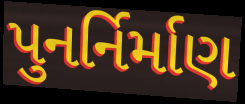
પુનર્નિર્માણ